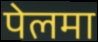
पेलमा